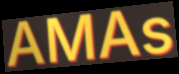
AMAs